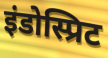
इंडोस्प्रिट